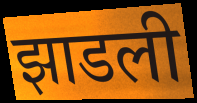
झाडली